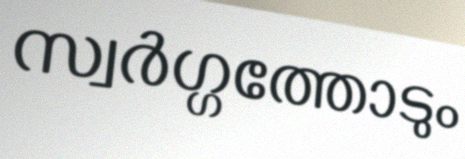
സ്വർഗ്ഗത്തോടും